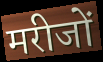
मरीजों